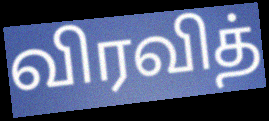
விரவித்